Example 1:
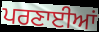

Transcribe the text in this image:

ਪਰਣਾਈਆਂ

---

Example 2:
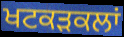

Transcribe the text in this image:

ਖਟਕੜਕਲਾਂ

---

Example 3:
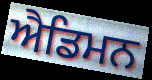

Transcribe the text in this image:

ਐਡਿਮਨ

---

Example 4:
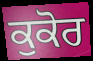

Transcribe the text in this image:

ਕੁਕੋਰ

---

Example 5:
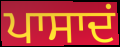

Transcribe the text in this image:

ਪਾਸਾਦਂ